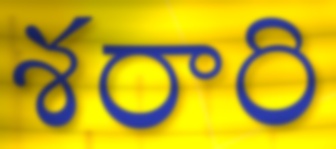
శరారి